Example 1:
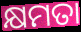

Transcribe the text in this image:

କ୍ଷମତା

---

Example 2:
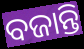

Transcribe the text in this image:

ବଜାନ୍ତି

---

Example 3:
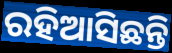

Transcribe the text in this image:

ରହିଆସିଛନ୍ତି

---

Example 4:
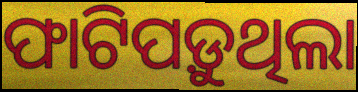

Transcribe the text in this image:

ଫାଟିପଡ଼ୁଥିଲା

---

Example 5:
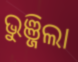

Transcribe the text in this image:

ଭୁଞ୍ଜିଲା